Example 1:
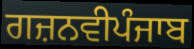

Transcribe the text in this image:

ਗਜ਼ਨਵੀਪੰਜਾਬ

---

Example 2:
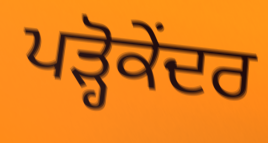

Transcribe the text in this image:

ਪੜ੍ਹੋਕੇਂਦਰ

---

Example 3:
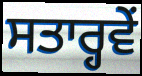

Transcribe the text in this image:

ਸਤਾਰ੍ਹਵੇਂ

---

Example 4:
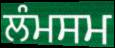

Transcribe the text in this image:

ਲੰਮਸਮ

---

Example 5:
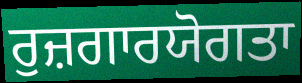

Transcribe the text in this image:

ਰੁਜ਼ਗਾਰਯੋਗਤਾ